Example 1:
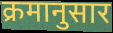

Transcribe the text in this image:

क्रमानुसार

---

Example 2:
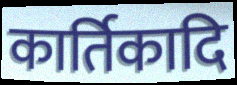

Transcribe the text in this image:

कार्तिकादि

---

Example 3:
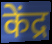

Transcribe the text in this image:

केंद्र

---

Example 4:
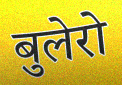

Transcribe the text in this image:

बुलेरो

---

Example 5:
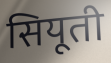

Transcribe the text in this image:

सियूती